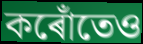
কৰোঁতেও